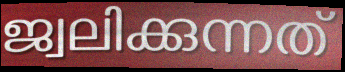
ജ്വലിക്കുന്നത്